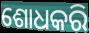
ଶୋଧକରି